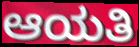
ಆಯತಿ